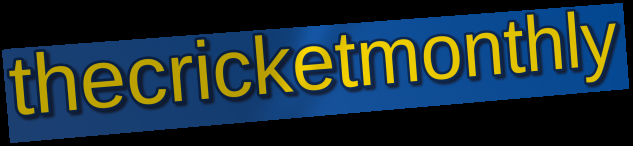
thecricketmonthly